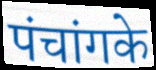
पंचांगके